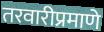
तरवारीप्रमाणे